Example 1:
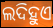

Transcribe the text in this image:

ଲଦିହୁଏ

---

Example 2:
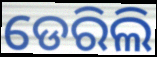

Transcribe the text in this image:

ଡେରିଲି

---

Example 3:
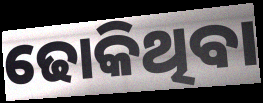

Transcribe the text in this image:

ଢୋକିଥିବା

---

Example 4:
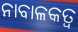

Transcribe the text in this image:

ନାବାଳକତ୍ଵ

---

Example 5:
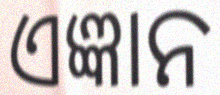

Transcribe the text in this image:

ଏଜ୍ଞାନ